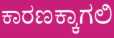
ಕಾರಣಕ್ಕಾಗಲಿ